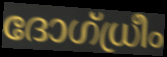
ദോഗ്ധ്രീം